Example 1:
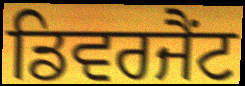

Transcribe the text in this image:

ਡਿਵਰਜੈਂਟ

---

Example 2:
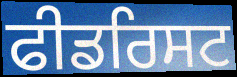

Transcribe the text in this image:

ਫੀਡਰਿਸਟ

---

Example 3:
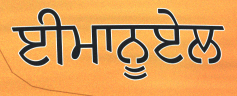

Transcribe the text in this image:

ਈਮਾਨੂਏਲ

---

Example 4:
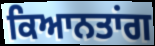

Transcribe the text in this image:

ਕਿਆਨਤਾਂਗ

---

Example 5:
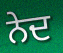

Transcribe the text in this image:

ਨੇਦ